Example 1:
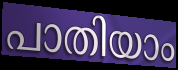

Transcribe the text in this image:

പാതിയാം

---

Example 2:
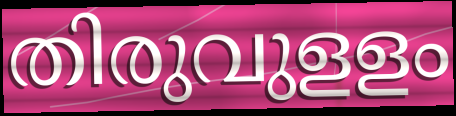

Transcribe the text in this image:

തിരുവുളളം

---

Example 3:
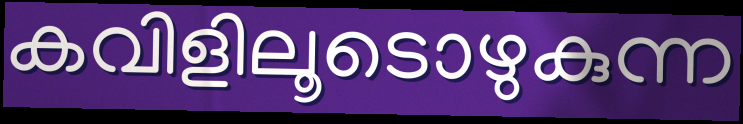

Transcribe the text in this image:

കവിളിലൂടൊഴുകുന്ന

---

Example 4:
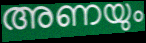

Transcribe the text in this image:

അണയും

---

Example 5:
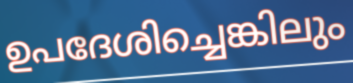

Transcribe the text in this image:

ഉപദേശിച്ചെങ്കിലും